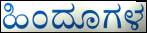
ಹಿಂದೂಗಳ